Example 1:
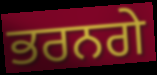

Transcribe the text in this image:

ਭਰਨਗੇ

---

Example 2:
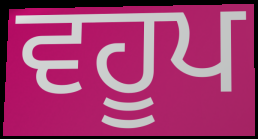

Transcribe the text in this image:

ਵਹੂਪ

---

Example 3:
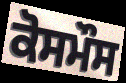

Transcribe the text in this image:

ਕੋਸਮੌਸ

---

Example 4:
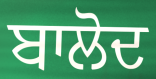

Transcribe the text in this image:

ਬਾਲੋਦ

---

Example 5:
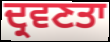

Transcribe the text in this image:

ਦ੍ਰਵਣਤਾ